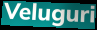
Veluguri